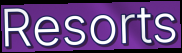
Resorts